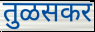
तुळसकर